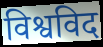
विश्वविद